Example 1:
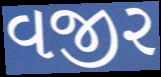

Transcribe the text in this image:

વજીર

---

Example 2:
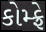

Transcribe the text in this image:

કોમ્ફ્રે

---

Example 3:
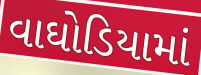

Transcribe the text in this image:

વાઘોડિયામાં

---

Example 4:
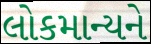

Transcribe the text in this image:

લોકમાન્યને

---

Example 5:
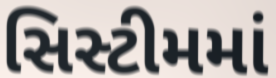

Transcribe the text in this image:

સિસ્ટીમમાં